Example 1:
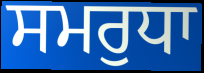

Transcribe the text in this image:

ਸਮਰੁਧਾ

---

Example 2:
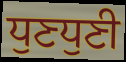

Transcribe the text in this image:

ਧੁਣਧੁਣੀ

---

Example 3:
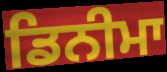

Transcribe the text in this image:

ਡਿਨੀਮਾ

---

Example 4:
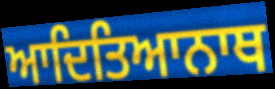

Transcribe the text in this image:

ਆਦਿਤਿਆਨਾਥ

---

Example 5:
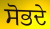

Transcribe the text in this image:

ਸੋਭਦੇ